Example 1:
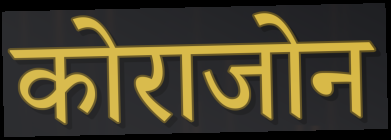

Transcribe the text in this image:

कोराजोन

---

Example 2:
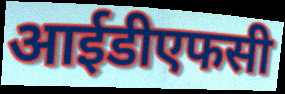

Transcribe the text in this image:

आईडीएफसी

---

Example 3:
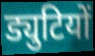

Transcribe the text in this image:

ड्युटियों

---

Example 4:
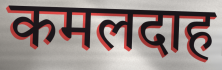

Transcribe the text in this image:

कमलदाह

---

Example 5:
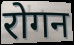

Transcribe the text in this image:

रोगन